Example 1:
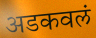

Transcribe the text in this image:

अडकवलं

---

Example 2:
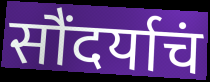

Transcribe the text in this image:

सौंदर्याचं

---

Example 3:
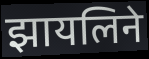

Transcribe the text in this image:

झायलिने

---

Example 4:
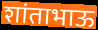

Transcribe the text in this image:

शांताभाऊ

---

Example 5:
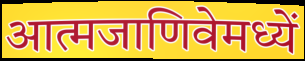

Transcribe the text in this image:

आत्मजाणिवेमध्यें